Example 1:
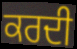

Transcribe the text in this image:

ਕਰਦੀ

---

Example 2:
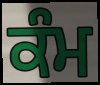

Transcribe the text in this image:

ਕੰਮ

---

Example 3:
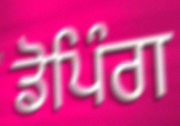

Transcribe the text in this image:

ਡੋਪਿੰਗ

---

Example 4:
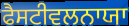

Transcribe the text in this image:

ਫੈਸਟੀਵਲਨਾਯਾ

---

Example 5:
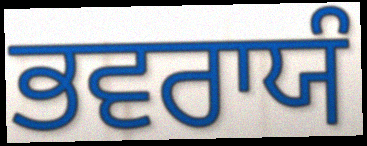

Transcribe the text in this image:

ਭਵਰਾਯੰ